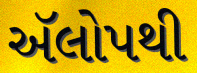
ઍલોપથી